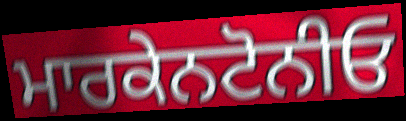
ਮਾਰਕੇਨਟੋਨੀਓ